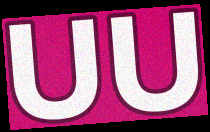
UU